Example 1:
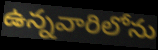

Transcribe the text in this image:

ఉన్నవారిలోను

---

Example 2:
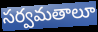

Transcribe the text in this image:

సర్వమతాలూ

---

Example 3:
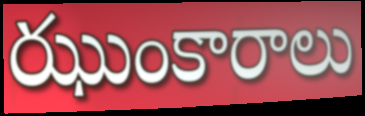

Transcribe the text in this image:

ఝుంకారాలు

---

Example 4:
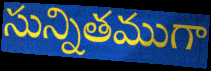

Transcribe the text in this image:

సున్నితముగా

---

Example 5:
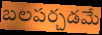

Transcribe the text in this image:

బలపర్చడమే